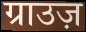
ग्राउज़